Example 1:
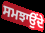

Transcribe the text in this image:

ਸਮਝਾਉਂਦੇ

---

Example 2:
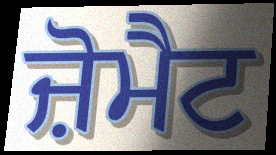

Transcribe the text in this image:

ਜ਼ੋਮੈਟ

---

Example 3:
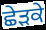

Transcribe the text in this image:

ਛੇੜਕੇ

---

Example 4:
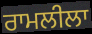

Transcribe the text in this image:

ਰਾਮਲੀਲਾ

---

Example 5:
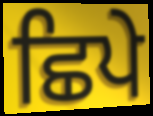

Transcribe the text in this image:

ਛਿਪੇ